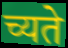
च्यते